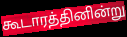
கூடாரத்தினின்று